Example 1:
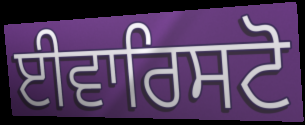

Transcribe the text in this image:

ਈਵਾਰਿਸਟੋ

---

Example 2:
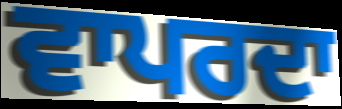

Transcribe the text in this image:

ਵਾਪਰਦਾ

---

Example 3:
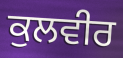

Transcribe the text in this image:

ਕੁਲਵੀਰ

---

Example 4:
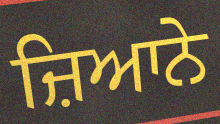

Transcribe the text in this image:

ਜ਼ਿਆਨੇ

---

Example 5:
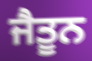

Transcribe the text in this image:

ਜੈਤੂਨ